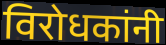
विरोधकांनी